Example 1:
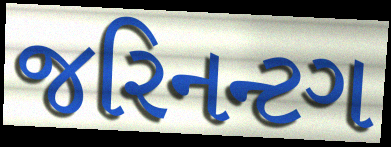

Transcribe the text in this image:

જરિનન્ટગ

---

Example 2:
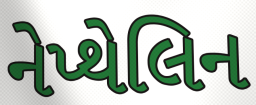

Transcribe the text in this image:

નેપ્થેલિન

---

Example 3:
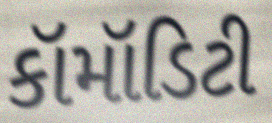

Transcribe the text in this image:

કૉમૉડિટી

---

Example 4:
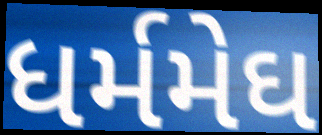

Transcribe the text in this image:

ધર્મમેઘ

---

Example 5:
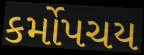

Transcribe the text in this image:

કર્મોપચય